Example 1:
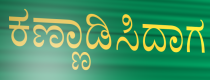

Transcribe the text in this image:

ಕಣ್ಣಾಡಿಸಿದಾಗ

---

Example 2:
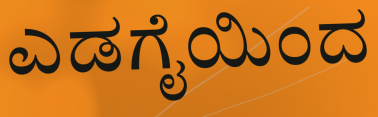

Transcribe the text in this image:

ಎಡಗೈಯಿಂದ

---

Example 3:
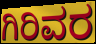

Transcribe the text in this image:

ಗಿರಿವರ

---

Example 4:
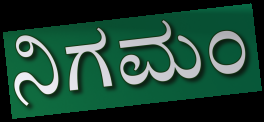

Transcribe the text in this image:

ನಿಗಮಂ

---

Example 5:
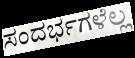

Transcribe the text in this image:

ಸಂದರ್ಭಗಳೆಲ್ಲ